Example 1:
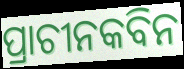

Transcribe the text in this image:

ପ୍ରାଚୀନକବିନ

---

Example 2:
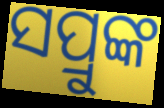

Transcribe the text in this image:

ସପ୍ରୁଙ୍କ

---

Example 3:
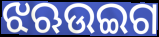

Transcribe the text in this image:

ଝଋଉଇଗ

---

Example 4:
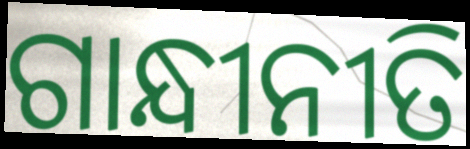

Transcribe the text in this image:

ଗାନ୍ଧୀନୀତି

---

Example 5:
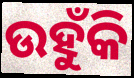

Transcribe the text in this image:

ଉହୁଁକି